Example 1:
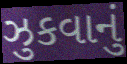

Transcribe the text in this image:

ઝુકવાનું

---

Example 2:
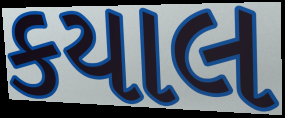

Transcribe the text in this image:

કયાલ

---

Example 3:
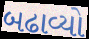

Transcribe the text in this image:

બઢાવ્યો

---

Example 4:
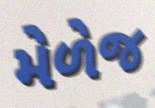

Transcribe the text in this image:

મેળેજ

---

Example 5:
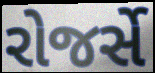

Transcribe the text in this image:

રોજર્સે